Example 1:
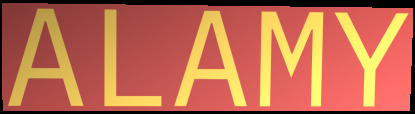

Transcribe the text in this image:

ALAMY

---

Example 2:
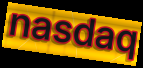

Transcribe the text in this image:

nasdaq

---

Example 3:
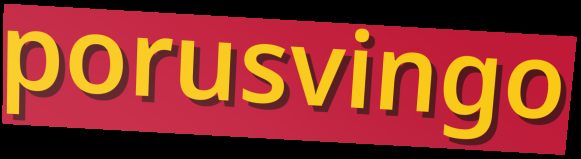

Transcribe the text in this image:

porusvingo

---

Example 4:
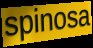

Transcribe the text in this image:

spinosa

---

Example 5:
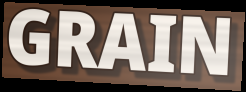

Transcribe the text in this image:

GRAIN